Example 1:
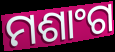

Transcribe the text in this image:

ମଶାଂଗ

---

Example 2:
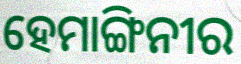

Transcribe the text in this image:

ହେମାଙ୍ଗିନୀର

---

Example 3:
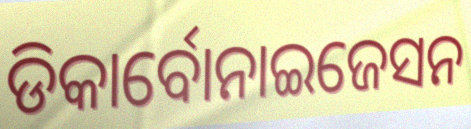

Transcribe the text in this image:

ଡିକାର୍ବୋନାଇଜେସନ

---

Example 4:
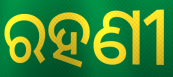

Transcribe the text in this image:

ରହଣୀ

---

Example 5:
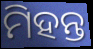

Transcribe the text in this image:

ମିହନ୍ତ